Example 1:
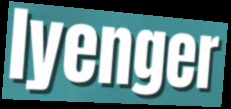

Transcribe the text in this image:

Iyenger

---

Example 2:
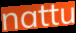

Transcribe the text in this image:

nattu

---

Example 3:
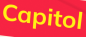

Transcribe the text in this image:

Capitol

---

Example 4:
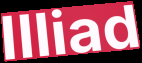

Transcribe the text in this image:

Illiad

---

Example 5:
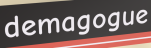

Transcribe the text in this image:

demagogue